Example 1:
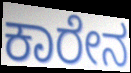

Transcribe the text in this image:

ಕಾರೇನ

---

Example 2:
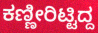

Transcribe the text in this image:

ಕಣ್ಣೀರಿಟ್ಟಿದ್ದ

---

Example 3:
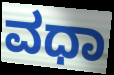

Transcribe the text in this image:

ವಧಾ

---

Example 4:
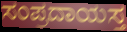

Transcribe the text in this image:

ಸಂಪ್ರದಾಯಸ್ತ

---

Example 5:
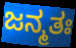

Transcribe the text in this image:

ಜನ್ಮತಃ